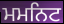
ਮਮਨਿਟ